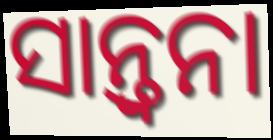
ସାନ୍ତ୍ବନା